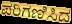
ಪರಿಗಣಿಸಿದ